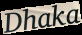
Dhaka